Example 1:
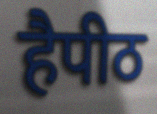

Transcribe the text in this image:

हैपीठ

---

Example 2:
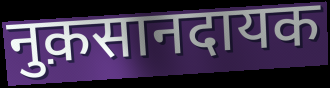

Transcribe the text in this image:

नुक़सानदायक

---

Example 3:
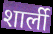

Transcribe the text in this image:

शार्ली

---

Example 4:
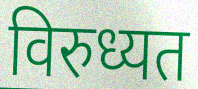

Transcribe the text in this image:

विरुध्यत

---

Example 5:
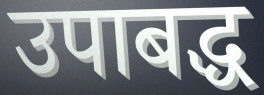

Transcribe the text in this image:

उपाबद्ध